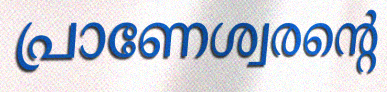
പ്രാണേശ്വരന്റെ